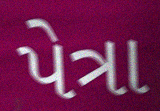
પેત્રા